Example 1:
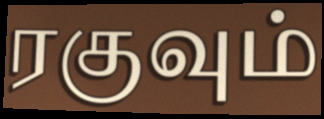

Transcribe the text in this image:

ரகுவும்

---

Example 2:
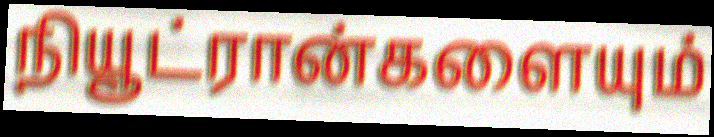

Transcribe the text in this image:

நியூட்ரான்களையும்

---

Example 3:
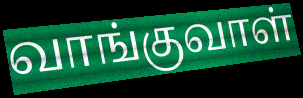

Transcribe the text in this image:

வாங்குவாள்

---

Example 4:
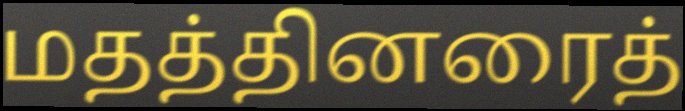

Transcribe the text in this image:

மதத்தினரைத்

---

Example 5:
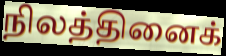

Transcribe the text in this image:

நிலத்தினைக்